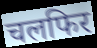
चलफिर